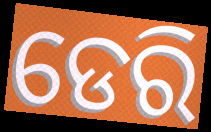
ଡେରି